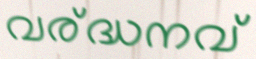
വര്ദ്ധനവ്